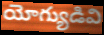
యోగ్యుడివి